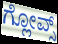
ಗ್ಲೋವ್ಸ್